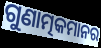
ଗୁଣାତ୍ମକମାନର